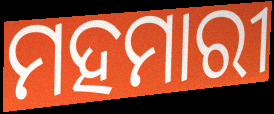
ମହମାରୀ